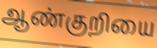
ஆண்குறியை